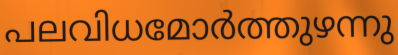
പലവിധമോർത്തുഴന്നു